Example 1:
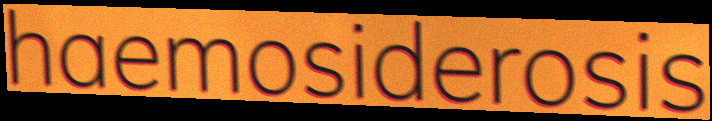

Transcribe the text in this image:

haemosiderosis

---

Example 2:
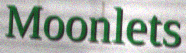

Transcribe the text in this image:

Moonlets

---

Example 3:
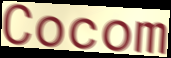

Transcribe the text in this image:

Cocom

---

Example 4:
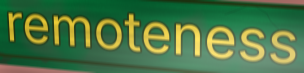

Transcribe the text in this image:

remoteness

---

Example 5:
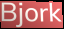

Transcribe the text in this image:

Bjork